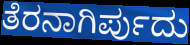
ತೆರನಾಗಿರ್ಪುದು